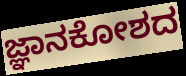
ಜ್ಞಾನಕೋಶದ